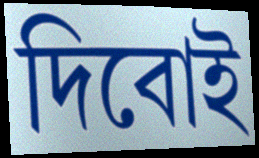
দিবোই